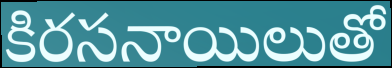
కిరసనాయిలుతో